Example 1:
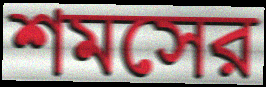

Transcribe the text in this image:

শমসের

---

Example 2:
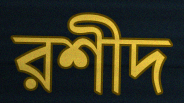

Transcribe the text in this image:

রশীদ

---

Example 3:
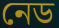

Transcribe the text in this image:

নেড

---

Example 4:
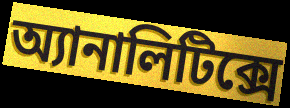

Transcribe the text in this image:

অ্যানালিটিক্সে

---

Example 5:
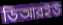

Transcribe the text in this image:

ডিআরইউ